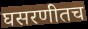
घसरणीतच